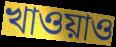
খাওয়াও